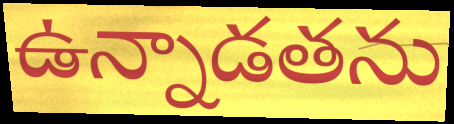
ఉన్నాడతను